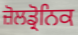
ਜ਼ੋਲਡ੍ਰੋਨਿਕ